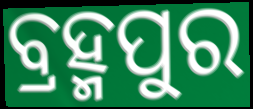
ବ୍ରହ୍ମପୁର